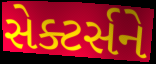
સેક્ટર્સને